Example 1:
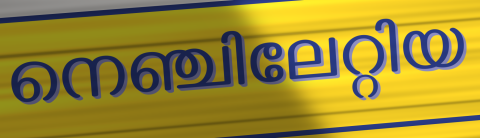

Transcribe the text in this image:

നെഞ്ചിലേറ്റിയ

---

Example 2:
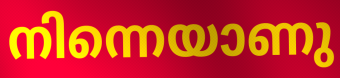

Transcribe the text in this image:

നിന്നെയാണു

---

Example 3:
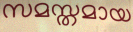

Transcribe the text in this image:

സമസ്തമായ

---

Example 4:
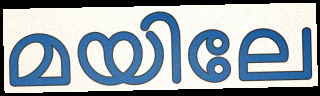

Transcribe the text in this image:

മയിലേ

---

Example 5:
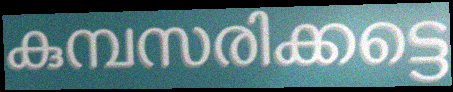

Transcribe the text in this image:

കുമ്പസരിക്കട്ടെ